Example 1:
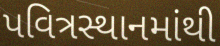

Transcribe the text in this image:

પવિત્રસ્થાનમાંથી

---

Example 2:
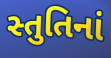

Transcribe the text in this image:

સ્તુતિનાં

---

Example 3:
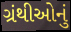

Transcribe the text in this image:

ગ્રંથીઓનું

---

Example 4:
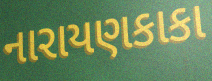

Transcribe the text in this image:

નારાયણકાકા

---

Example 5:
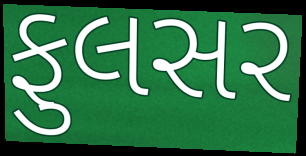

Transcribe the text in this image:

ફુલસર